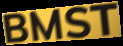
BMST